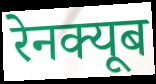
रेनक्यूब